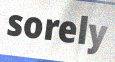
sorely